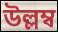
উল্লম্ব